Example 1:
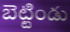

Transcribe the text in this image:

బెట్టిండు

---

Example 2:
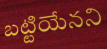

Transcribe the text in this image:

బట్టియేనని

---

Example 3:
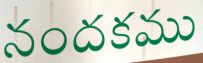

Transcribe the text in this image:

నందకము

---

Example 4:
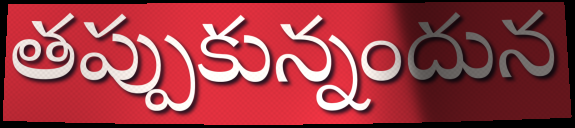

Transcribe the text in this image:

తప్పుకున్నందున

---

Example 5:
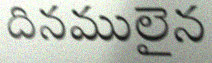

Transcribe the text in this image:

దినములైన